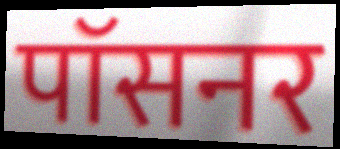
पॉसनर